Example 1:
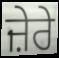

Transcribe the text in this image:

ਜ਼ੇਰੇ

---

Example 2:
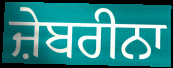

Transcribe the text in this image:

ਜ਼ੇਬਰੀਨਾ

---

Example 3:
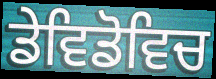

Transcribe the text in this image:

ਡੇਵਿਡੋਵਿਚ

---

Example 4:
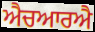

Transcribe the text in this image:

ਐਚਆਰਐ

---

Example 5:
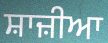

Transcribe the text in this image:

ਸ਼ਾਜ਼ੀਆ